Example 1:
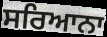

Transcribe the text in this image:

ਸਰਿਆਨਾ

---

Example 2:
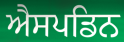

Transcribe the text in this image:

ਐਸਪਡਿਨ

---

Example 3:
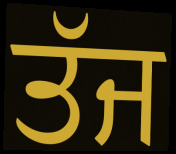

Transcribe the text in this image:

ਤੱਜ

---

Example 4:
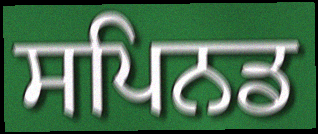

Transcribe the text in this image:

ਸਪਿਨਡ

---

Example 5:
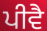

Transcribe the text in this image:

ਪੀਵੈ